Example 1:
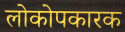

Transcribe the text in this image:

लोकोपकारक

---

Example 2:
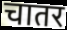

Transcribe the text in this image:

चातर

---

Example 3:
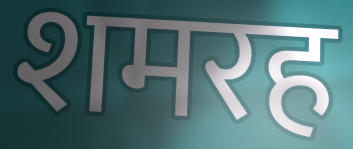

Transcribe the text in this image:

शमरह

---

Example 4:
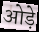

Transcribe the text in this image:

ओड़े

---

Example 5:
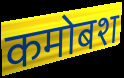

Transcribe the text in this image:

कमोबश